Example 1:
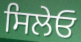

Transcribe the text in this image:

ਸਿਲੇਓ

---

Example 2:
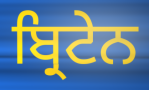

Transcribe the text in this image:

ਬ੍ਰਿਟੇਨ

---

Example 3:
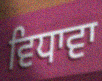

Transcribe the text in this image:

ਵਿਧਾਵਾ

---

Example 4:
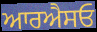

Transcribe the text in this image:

ਆਰਐਸਓ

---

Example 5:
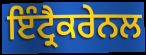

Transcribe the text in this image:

ਇੰਟ੍ਰੈਕਰੇਨਲ